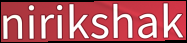
nirikshak